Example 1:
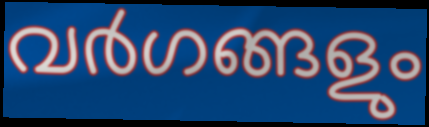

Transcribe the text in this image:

വർഗങ്ങളും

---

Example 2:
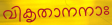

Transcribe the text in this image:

വികൃതാനനാഃ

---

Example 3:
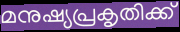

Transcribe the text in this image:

മനുഷ്യപ്രകൃതിക്ക്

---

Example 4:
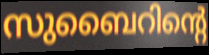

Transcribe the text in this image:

സുബൈറിന്റെ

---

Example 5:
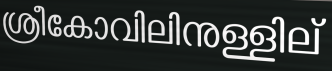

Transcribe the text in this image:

ശ്രീകോവിലിനുള്ളില്